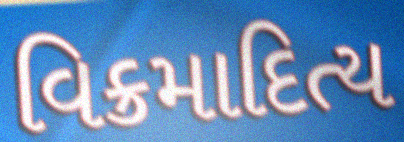
વિક્રમાદિત્‍ય